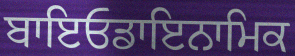
ਬਾਇਓਡਾਇਨਾਮਿਕ